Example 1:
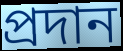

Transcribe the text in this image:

প্ৰদান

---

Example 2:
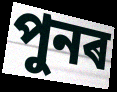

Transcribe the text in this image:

পুনৰ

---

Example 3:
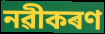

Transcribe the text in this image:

নৱীকৰণ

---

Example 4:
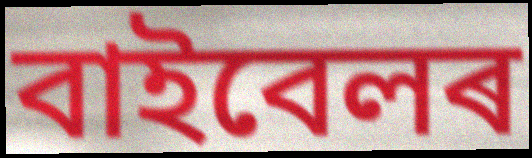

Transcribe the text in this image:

বাইবেলৰ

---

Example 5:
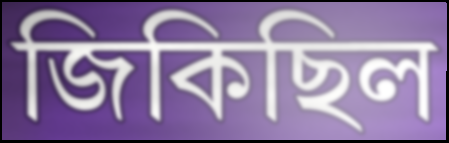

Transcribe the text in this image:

জিকিছিল